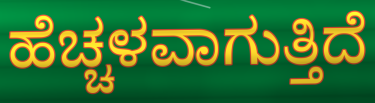
ಹೆಚ್ಚಳವಾಗುತ್ತಿದೆ